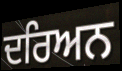
ਦਰਿਅਨ